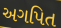
અગપિત